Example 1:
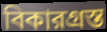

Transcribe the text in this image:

বিকারগ্রস্ত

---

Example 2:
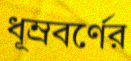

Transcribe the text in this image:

ধূম্রবর্ণের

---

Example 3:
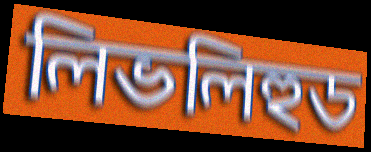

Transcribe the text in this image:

লিভলিহুড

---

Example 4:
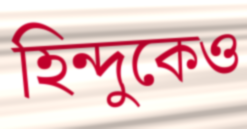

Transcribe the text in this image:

হিন্দুকেও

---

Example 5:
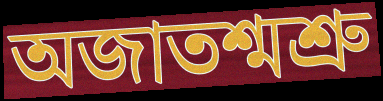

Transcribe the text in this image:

অজাতশ্মশ্রু